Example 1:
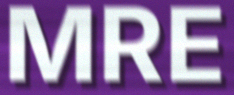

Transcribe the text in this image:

MRE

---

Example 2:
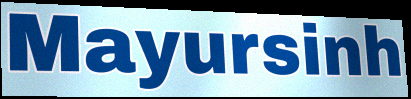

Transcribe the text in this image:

Mayursinh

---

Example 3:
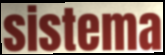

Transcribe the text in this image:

sistema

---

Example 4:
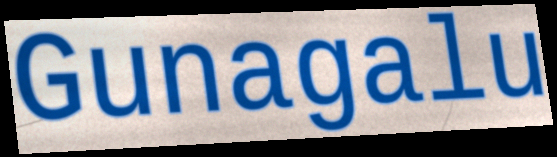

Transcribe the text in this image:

Gunagalu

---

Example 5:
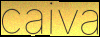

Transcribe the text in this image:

caiva